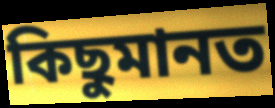
কিছুমানত